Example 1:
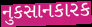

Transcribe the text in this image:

નુકસાનકારક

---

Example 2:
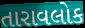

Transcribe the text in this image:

તારાવલોક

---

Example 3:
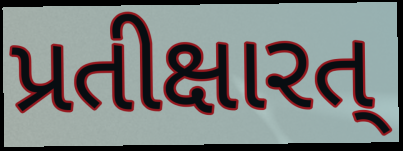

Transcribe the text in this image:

પ્રતીક્ષારત્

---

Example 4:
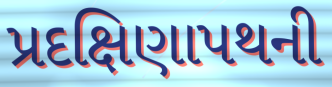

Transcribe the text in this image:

પ્રદક્ષિણાપથની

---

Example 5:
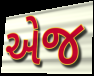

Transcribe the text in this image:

એજ